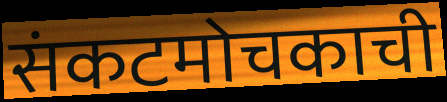
संकटमोचकाची